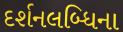
દર્શનલબ્ધિના